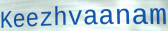
Keezhvaanam